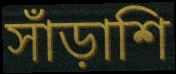
সাঁড়াশি